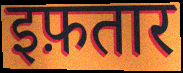
इफ़तार